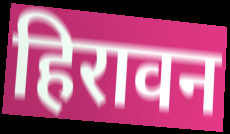
हिरावन